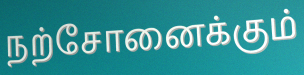
நற்சோனைக்கும்